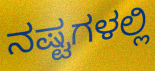
ನಷ್ಟಗಳಲ್ಲಿ